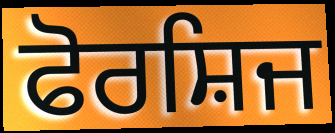
ਫੋਰਸ਼ਿਜ